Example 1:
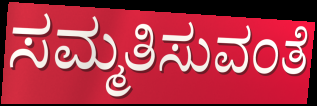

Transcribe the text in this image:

ಸಮ್ಮತಿಸುವಂತೆ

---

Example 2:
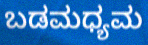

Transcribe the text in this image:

ಬಡಮಧ್ಯಮ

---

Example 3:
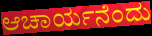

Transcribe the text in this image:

ಆಚಾರ್ಯನೆಂದು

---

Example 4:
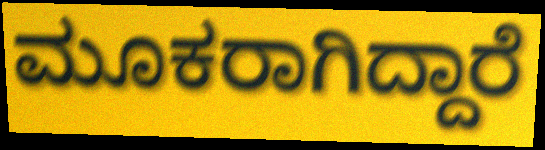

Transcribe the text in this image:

ಮೂಕರಾಗಿದ್ದಾರೆ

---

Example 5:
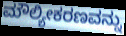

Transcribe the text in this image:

ಮೌಲ್ಯೀಕರಣವನ್ನು